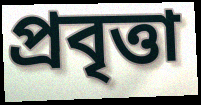
প্রবৃত্তা